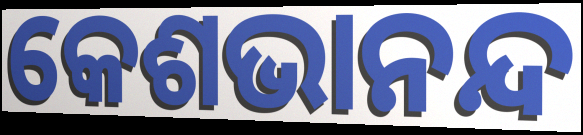
କେଶଭାନନ୍ଦ